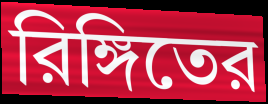
রিঙ্গিতের